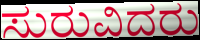
ಸುರುವಿದರು